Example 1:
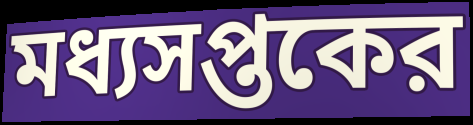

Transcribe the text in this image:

মধ্যসপ্তকের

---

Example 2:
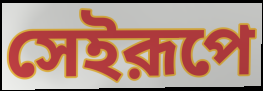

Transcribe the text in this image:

সেইরূপে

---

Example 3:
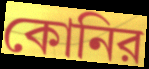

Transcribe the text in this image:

কোনির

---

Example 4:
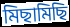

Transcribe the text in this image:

মিছামিছি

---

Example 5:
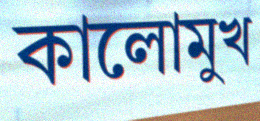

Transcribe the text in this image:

কালোমুখ